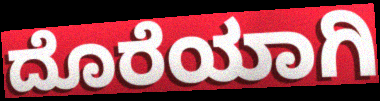
ದೊರೆಯಾಗಿ